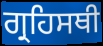
ਗ੍ਰਹਿਸਥੀ